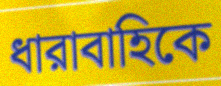
ধারাবাহিকে